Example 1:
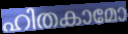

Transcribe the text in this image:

ഹിതകാമോ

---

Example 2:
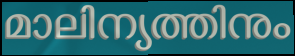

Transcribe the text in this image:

മാലിന്യത്തിനും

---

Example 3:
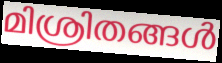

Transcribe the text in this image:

മിശ്രിതങ്ങൾ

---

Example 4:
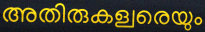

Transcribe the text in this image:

അതിരുകള്വരെയും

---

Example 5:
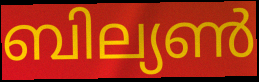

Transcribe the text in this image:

ബില്യൺ